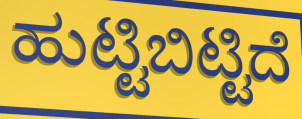
ಹುಟ್ಟಿಬಿಟ್ಟಿದೆ